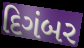
દિગંબર